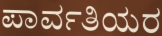
ಪಾರ್ವತಿಯರ